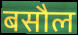
बसौल